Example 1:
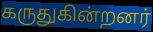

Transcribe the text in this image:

கருதுகின்றனர்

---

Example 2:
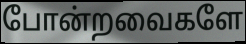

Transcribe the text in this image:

போன்றவைகளே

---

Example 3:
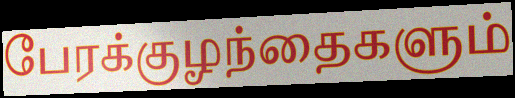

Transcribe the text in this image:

பேரக்குழந்தைகளும்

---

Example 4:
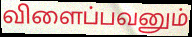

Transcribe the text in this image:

விளைப்பவனும்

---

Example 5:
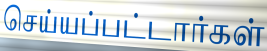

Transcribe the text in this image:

செய்யப்பட்டார்கள்